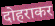
दोहराकर